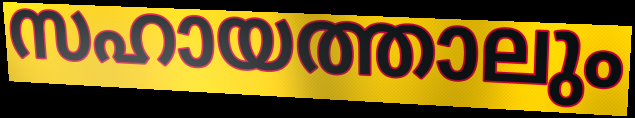
സഹായത്താലും